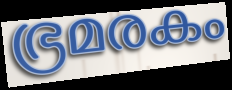
ഭ്രമരകം